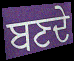
ਬਣਦੇ